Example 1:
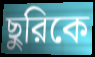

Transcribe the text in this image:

ছুরিকে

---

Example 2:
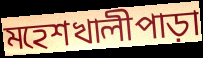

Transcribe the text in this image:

মহেশখালীপাড়া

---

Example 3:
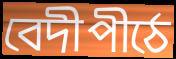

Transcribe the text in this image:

বেদীপীঠে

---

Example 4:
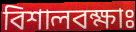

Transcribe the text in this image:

বিশালবক্ষাঃ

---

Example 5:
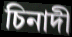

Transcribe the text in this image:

চিনাদী